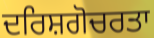
ਦਰਿਸ਼ਗੋਚਰਤਾ